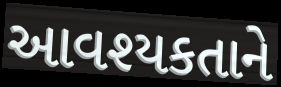
આવશ્યકતાને